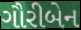
ગૌરીબેન